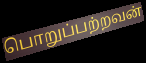
பொறுப்பற்றவன்